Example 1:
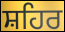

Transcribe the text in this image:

ਸ਼ਹਿਰ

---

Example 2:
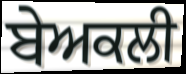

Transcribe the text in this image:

ਬੇਅਕਲੀ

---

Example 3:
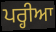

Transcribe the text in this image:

ਪਰ੍ਹੀਆ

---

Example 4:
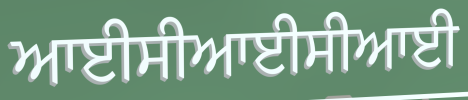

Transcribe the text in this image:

ਆਈਸੀਆਈਸੀਆਈ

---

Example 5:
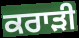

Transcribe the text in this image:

ਕਰਾੜੀ